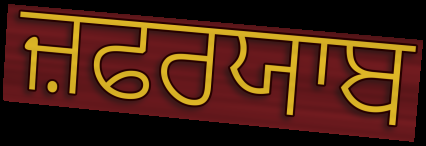
ਜ਼ਫਰਯਾਬ